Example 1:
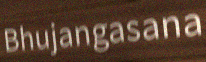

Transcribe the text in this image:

Bhujangasana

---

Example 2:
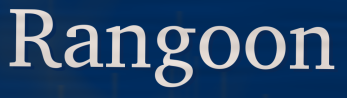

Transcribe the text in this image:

Rangoon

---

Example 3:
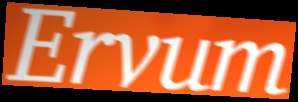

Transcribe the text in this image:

Ervum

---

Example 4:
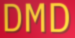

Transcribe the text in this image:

DMD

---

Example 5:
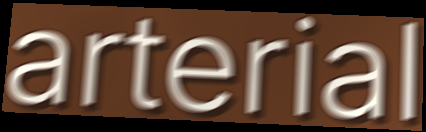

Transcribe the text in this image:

arterial